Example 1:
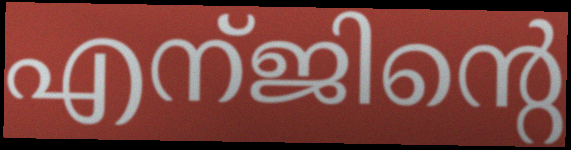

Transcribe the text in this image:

എന്ജിന്റെ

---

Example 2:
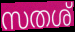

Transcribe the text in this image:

സതശ്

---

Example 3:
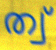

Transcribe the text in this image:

ത്വ്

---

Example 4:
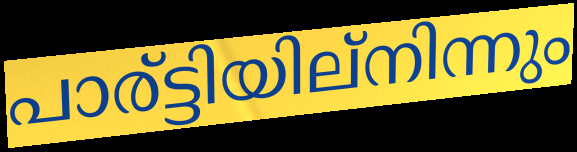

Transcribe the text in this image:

പാര്ട്ടിയില്നിന്നും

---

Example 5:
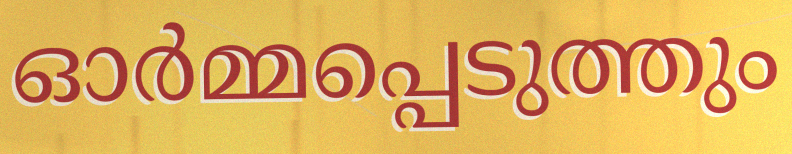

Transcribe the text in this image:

ഓർമ്മപ്പെടുത്തും